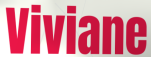
Viviane